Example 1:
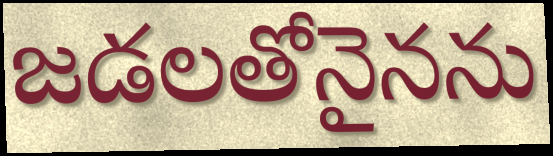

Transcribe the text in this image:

జడలతోనైనను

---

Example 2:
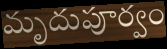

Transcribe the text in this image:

మృదుపూర్వం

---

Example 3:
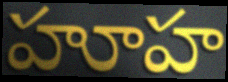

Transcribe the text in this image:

హూహ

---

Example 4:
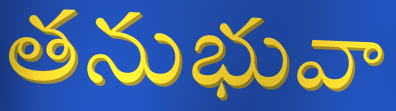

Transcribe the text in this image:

తనుభువా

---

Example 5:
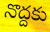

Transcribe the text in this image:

నొద్దకు